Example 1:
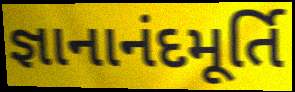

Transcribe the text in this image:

જ્ઞાનાનંદમૂર્તિ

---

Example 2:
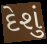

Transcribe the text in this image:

દેશું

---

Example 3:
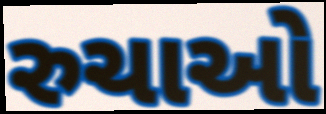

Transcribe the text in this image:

રુચાઓ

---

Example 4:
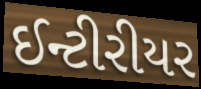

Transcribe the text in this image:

ઈન્ટીરીયર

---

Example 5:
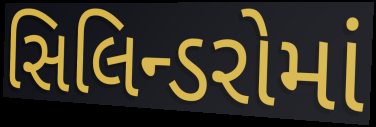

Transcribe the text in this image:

સિલિન્ડરોમાં